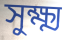
সুক্ষ্ম